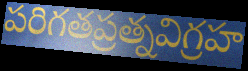
పరిగతప్రత్నవిగ్రహ